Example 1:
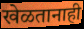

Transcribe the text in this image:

खेळतानाही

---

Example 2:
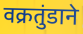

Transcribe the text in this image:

वक्रतुंडाने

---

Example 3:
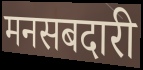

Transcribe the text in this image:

मनसबदारी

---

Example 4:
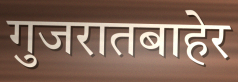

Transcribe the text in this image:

गुजरातबाहेर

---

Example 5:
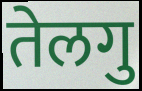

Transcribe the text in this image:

तेलगु